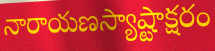
నారాయణస్యాష్టాక్షరం